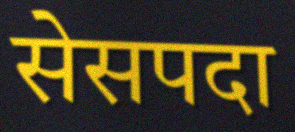
सेसपदा